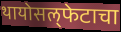
थायोसल्फेटाचा